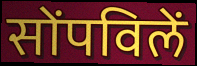
सोंपविलें